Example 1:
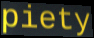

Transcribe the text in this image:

piety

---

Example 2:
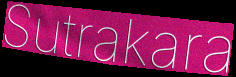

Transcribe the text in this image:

Sutrakara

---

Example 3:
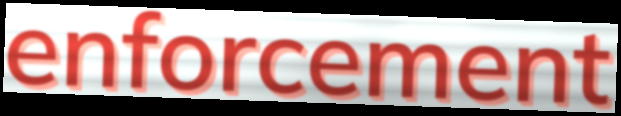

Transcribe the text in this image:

enforcement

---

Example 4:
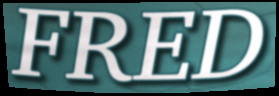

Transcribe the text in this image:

FRED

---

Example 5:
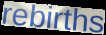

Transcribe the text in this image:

rebirths